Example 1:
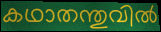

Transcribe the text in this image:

കഥാതന്തുവിൽ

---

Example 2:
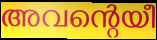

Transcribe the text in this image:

അവന്റെയീ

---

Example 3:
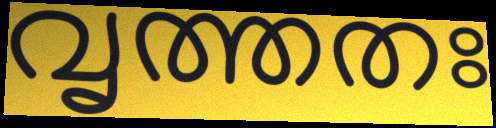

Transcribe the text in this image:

വൃത്തതഃ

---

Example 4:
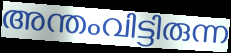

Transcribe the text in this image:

അന്തംവിട്ടിരുന്ന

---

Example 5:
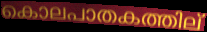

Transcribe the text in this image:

കൊലപാതകത്തില്